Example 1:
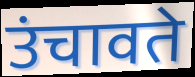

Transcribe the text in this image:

उंचावते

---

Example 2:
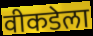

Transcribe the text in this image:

वीकडेला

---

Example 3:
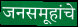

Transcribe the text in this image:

जनसमूहांचे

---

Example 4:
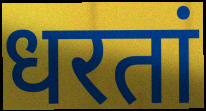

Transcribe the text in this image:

धरतां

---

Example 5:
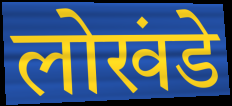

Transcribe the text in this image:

लोखंडे